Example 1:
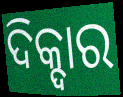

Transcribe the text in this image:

ଦିକ୍ଦାର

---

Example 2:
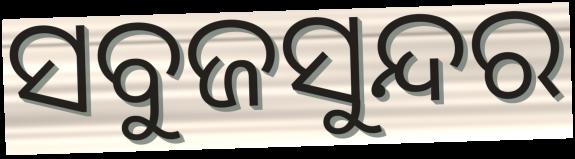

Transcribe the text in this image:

ସବୁଜସୁନ୍ଦର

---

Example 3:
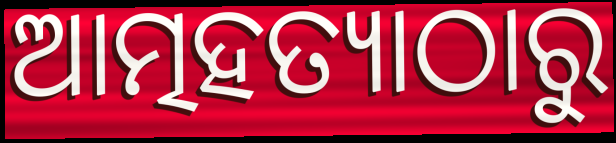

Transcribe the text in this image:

ଆତ୍ମହତ୍ୟାଠାରୁ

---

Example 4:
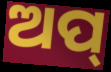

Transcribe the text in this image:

ଅପ୍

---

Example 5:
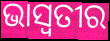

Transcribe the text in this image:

ଭାସ୍ଵତୀର